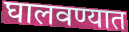
घालवण्यात